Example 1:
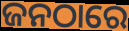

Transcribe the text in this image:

ଜନଠାରେ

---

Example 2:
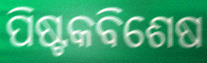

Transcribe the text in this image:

ପିଷ୍ଟକବିଶେଷ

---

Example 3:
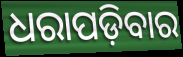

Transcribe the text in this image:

ଧରାପଡ଼ିବାର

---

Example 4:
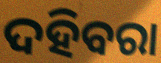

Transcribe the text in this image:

ଦହିବରା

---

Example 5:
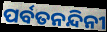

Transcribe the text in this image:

ପର୍ବତନନ୍ଦିନୀ